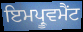
ਇਮਪ੍ਰੂਵਮੈਂਟ